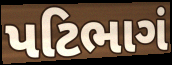
પટિભાગં